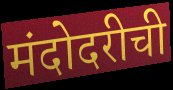
मंदोदरीची